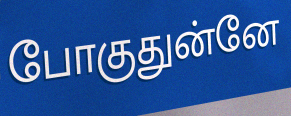
போகுதுன்னே